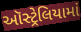
ઑસ્ટ્રેલિયામાં